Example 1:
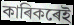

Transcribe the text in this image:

কাৰিকৰেই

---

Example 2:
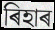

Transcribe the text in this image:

ৰিহাৰ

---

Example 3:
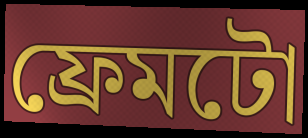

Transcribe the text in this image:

ফ্ৰেমটো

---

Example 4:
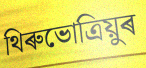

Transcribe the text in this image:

থিৰুভোত্ৰিয়ুৰ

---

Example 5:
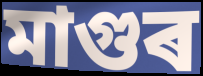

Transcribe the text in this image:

মাগুৰ